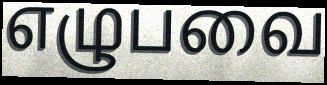
எழுபவை